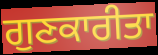
ਗੁਣਕਾਰੀਤਾ